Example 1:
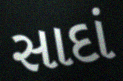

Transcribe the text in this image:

સાદાં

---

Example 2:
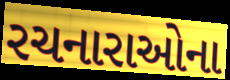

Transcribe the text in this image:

રચનારાઓના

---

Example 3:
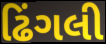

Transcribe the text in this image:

ઢિંગલી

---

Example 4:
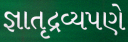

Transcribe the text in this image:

જ્ઞાતૃદ્રવ્યપણે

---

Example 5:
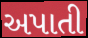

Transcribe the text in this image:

અપાતી